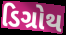
ડિગ્રોથ